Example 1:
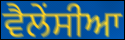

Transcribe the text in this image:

ਵੈਲੇਂਸੀਆ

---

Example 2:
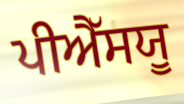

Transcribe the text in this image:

ਪੀਐੱਸਯੂ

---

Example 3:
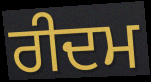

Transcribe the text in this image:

ਰੀਦਮ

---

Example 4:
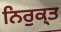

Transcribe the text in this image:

ਨਿਰੁਕ੍ਤ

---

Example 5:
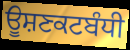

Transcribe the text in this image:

ਊਸ਼ਣਕਟਬੰਧੀ